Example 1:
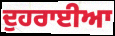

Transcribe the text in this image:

ਦੁਹਰਾਈਆ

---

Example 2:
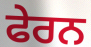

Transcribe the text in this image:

ਫੇਰਨ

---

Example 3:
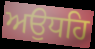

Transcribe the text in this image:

ਅਉਧਹਿ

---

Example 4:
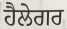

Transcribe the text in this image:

ਹੈਲੇਗਰ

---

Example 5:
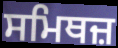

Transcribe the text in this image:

ਸਮਿਥਜ਼